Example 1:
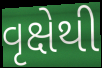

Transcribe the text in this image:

વૃક્ષેથી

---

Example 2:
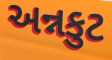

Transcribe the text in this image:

અન્નકુટ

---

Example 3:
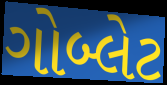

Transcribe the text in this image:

ગોબ્લેટ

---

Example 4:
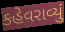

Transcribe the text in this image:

કહેવરાવ્યું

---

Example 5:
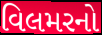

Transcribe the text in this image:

વિલમરનો